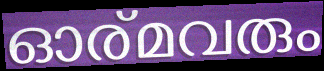
ഓര്മവരും